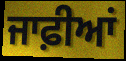
ਜਾਫ਼ੀਆਂ